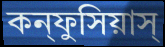
কন্ফুসিয়াস্